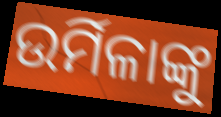
ଉର୍ମିଳାଙ୍କୁ